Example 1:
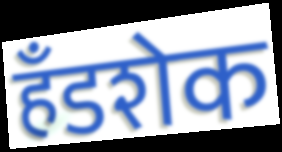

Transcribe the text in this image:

हँडशेक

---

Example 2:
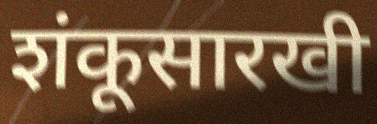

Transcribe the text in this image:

शंकूसारखी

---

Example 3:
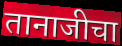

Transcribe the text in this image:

तानाजीचा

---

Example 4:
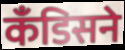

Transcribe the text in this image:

कँडिसने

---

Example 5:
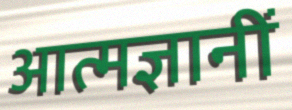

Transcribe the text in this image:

आत्मज्ञानीं